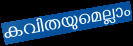
കവിതയുമെല്ലാം